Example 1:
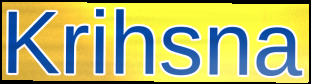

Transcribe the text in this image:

Krihsna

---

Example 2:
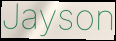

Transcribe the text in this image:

Jayson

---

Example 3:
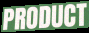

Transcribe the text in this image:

PRODUCT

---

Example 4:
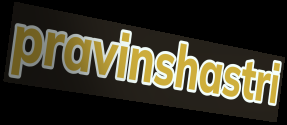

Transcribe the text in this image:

pravinshastri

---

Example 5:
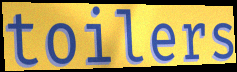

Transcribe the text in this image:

toilers